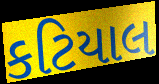
કટિયાલ